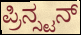
ಪ್ರಿನ್ಸ್ಟನ್